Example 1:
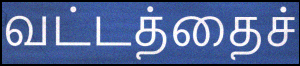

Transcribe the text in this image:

வட்டத்தைச்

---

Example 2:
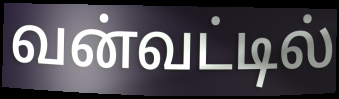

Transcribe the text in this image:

வன்வட்டில்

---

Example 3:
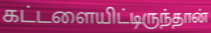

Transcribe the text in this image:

கட்டளையிட்டிருந்தான்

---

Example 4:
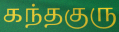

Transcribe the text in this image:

கந்தகுரு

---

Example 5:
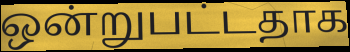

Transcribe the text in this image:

ஒன்றுபட்டதாக